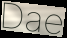
Dae